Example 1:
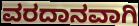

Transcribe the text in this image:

ವರದಾನವಾಗಿ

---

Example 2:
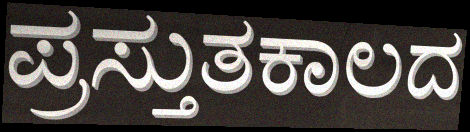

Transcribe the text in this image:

ಪ್ರಸ್ತುತಕಾಲದ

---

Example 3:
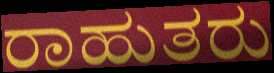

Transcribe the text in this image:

ರಾಹುತರು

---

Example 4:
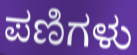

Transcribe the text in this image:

ಪಣಿಗಳು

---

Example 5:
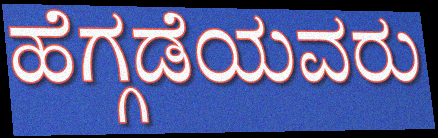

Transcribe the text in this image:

ಹೆಗ್ಗಡೆಯವರು